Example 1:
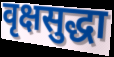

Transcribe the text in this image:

वृक्षसुद्धा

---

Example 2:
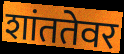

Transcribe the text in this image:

शांततेवर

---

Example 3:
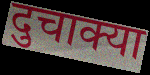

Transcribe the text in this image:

दुचाक्या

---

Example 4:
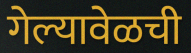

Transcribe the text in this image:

गेल्यावेळची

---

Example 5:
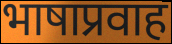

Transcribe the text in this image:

भाषाप्रवाह